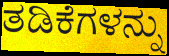
ತಡಿಕೆಗಳನ್ನು